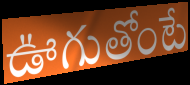
ఊగుతోంటే